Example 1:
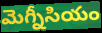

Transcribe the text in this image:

మెగ్నీసియం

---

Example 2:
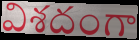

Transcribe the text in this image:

విశదంగా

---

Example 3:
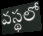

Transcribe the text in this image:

వస్థలో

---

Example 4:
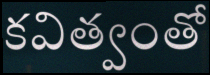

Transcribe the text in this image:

కవిత్వంతో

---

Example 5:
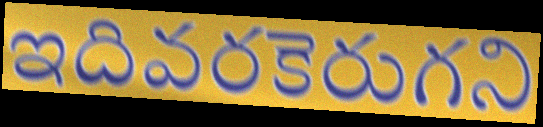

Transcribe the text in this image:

ఇదివరకెరుగని